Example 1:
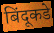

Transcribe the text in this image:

बिंदूकडे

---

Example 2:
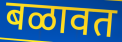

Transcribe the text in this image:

बळावत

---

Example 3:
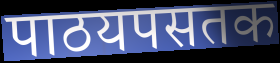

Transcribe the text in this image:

पाठयपसतक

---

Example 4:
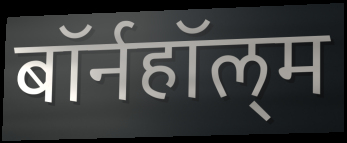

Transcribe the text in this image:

बॉर्नहॉल्म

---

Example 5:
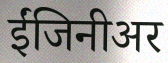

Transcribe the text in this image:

ईंजिनीअर